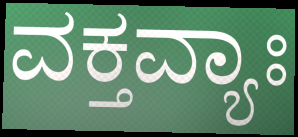
ವಕ್ತವ್ಯಾಃ